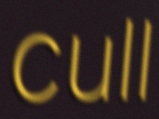
cull